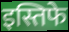
इस्तिफे